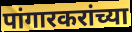
पांगारकरांच्या